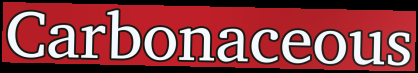
Carbonaceous